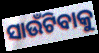
ସାଉଁଟିବାକୁ